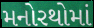
મનોરથોમાં